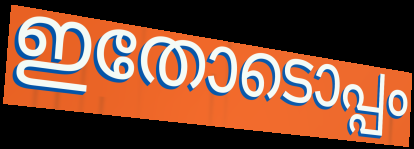
ഇതോടൊപ്പം